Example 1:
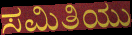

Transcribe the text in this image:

ಸಮಿತಿಯು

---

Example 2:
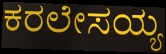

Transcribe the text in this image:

ಕರಲೇಸಯ್ಯ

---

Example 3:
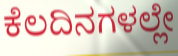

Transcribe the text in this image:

ಕೆಲದಿನಗಳಲ್ಲೇ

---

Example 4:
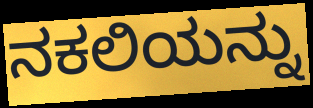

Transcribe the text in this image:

ನಕಲಿಯನ್ನು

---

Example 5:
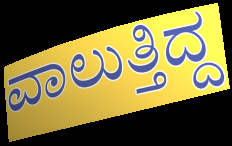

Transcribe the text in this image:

ವಾಲುತ್ತಿದ್ದ